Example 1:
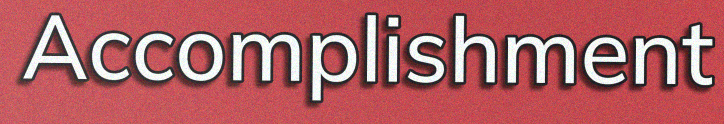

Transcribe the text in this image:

Accomplishment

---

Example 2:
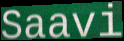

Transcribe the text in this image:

Saavi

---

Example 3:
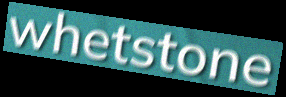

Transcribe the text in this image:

whetstone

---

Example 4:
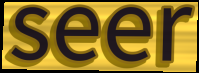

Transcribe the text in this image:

seer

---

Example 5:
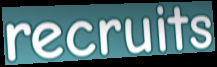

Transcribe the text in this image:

recruits